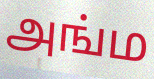
அங்ம